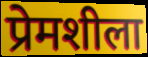
प्रेमशीला